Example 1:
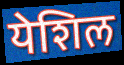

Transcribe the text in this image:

येशिल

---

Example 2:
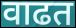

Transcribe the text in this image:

वाढत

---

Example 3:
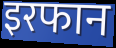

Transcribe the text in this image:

इरफान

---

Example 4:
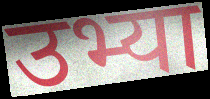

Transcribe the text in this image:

उभ्या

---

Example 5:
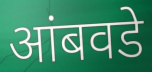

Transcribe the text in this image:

आंबवडे